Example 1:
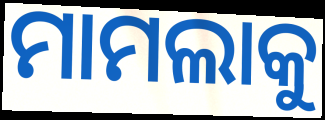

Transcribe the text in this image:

ମାମଲାକୁ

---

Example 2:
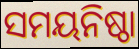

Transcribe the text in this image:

ସମୟନିଷ୍ଠା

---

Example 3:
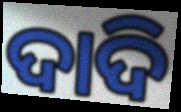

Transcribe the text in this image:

ଦାଦି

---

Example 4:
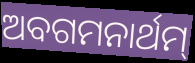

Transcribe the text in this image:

ଅବଗମନାର୍ଥମ୍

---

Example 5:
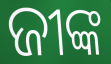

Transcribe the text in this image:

ଜୀଙ୍କ